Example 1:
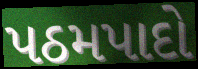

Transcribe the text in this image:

પઠમપાદો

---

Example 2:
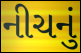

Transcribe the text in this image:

નીચનું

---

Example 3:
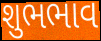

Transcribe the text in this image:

શુભભાવ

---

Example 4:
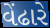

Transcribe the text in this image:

વેંઢારે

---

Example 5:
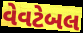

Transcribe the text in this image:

વેવટેબલ